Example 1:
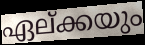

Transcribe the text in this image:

ഏല്ക്കയും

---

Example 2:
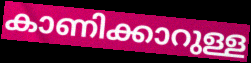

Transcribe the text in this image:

കാണിക്കാറുള്ള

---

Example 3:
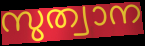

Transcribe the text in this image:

സുത്വാന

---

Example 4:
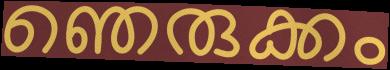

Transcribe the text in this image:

ഞെരുക്കം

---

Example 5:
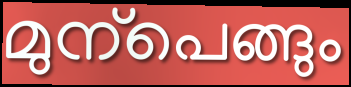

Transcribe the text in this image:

മുന്പെങ്ങും